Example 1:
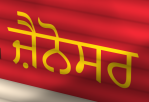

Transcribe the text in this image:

ਜ਼ੈਨੋਸਰ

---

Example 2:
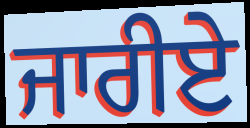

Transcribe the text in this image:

ਜਾਰੀਏ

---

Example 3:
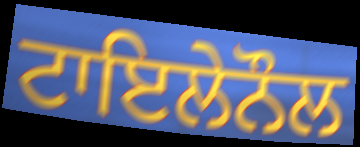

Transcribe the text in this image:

ਟਾਇਲੇਨੌਲ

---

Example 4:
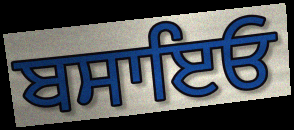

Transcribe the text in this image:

ਬਸਾਇਓ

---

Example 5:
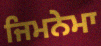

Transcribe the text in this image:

ਜਿਮਨੇਮਾ